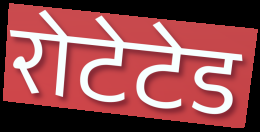
रोटेटेड